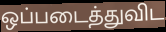
ஒப்படைத்துவிட